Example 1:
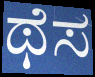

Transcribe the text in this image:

ಥೆಸ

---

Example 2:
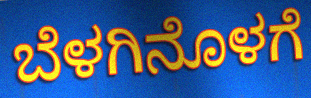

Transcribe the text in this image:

ಬೆಳಗಿನೊಳಗೆ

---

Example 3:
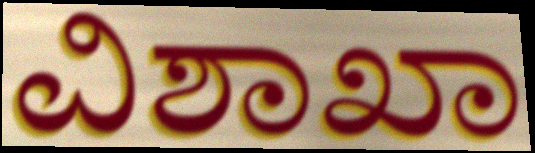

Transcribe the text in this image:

ವಿಶಾಖಾ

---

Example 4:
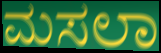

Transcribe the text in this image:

ಮಸಲಾ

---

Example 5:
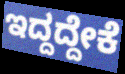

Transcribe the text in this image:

ಇದ್ದದ್ದೇಕೆ